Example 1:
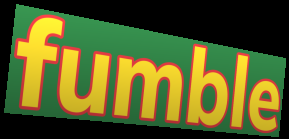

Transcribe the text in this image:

fumble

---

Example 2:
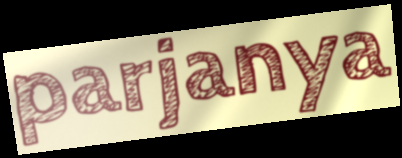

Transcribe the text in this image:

parjanya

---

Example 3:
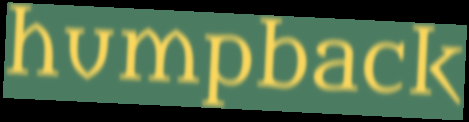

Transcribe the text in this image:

humpback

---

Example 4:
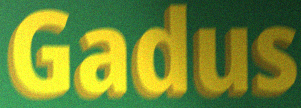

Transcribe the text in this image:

Gadus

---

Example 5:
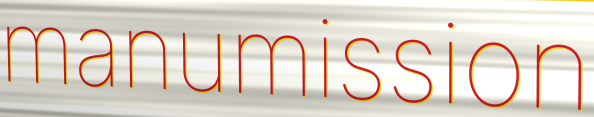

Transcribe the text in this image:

manumission